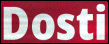
Dosti